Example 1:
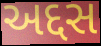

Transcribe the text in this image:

અદ્દસ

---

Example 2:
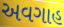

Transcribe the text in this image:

અવગાહ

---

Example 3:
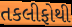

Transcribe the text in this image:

તકલીફોથી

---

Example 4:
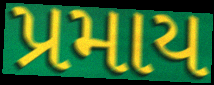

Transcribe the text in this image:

પ્રમાય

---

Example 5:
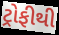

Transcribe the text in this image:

ટ્રોફીથી